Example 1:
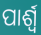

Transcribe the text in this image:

ପାର୍ଶ୍ୱ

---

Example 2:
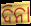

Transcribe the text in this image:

ଦିନା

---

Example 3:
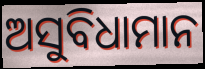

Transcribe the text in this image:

ଅସୁବିଧାମାନ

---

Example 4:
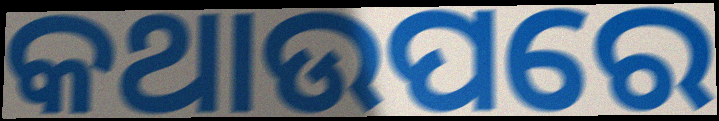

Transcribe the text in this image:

କଥାଉପରେ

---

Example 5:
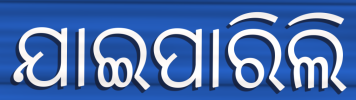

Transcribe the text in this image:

ଯାଇପାରିଲି